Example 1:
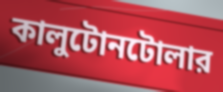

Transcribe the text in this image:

কালুটোনটোলার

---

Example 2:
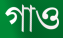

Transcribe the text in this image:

গাও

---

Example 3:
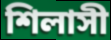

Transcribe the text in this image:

শিলাসী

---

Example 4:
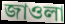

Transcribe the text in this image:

জাওলা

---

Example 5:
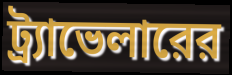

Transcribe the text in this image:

ট্র্যাভেলারের